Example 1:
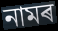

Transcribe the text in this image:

নামৰ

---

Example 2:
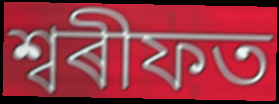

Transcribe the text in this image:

শ্বৰীফত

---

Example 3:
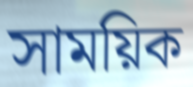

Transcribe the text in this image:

সাময়িক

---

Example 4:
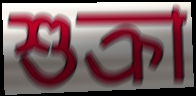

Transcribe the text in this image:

শুক্ৰা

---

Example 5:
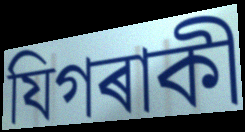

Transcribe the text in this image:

যিগৰাকী